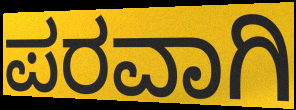
ಪರವಾಗಿ